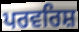
ਪਰਵਰਿਸ਼